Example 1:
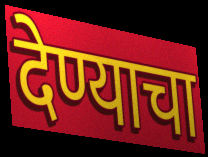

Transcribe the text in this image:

देण्याचा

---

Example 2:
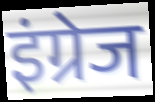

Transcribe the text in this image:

इंग्रेज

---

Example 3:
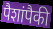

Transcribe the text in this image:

पैशांपैकी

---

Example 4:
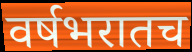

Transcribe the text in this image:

वर्षभरातच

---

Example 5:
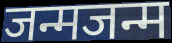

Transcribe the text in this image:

जन्मजन्म